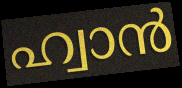
ഹ്വാൻ